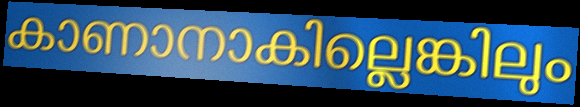
കാണാനാകില്ലെങ്കിലും